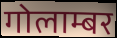
गोलाम्बर